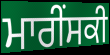
ਮਾਰੀੰਸਕੀ